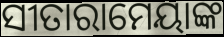
ସୀତାରାମେୟାଙ୍କ